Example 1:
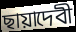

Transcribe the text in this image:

ছায়াদেবী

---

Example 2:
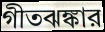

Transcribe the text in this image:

গীতঝঙ্কার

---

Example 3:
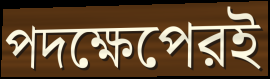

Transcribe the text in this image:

পদক্ষেপেরই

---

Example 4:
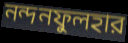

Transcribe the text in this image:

নন্দনফুলহার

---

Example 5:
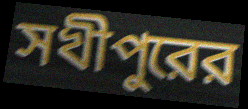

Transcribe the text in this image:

সখীপুরের